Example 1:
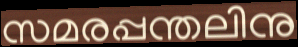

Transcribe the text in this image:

സമരപ്പന്തലിനു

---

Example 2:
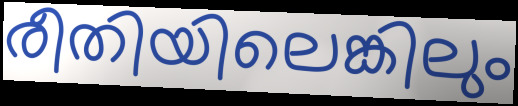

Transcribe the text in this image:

രീതിയിലെങ്കിലും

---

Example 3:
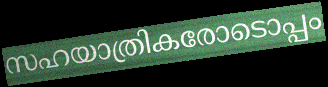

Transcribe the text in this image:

സഹയാത്രികരോടൊപ്പം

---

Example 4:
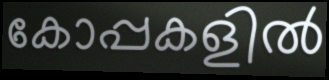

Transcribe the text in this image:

കോപ്പകളിൽ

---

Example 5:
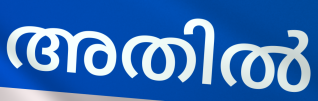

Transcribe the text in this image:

അതിൽ